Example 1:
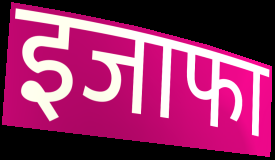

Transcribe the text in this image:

इजाफा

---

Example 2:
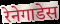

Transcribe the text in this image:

रेनेगाडेस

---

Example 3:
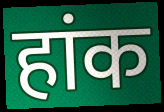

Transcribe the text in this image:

हांक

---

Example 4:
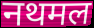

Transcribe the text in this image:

नथमल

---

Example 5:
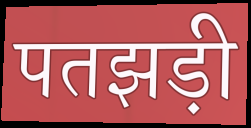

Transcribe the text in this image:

पतझड़ी